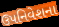
ઉપનિવેશના